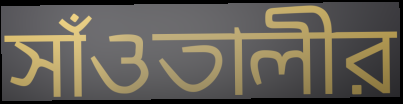
সাঁওতালীর